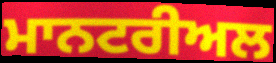
ਮਾਨਟਰੀਅਲ